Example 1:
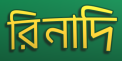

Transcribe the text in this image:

রিনাদি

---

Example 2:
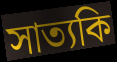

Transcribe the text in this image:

সাত্যকি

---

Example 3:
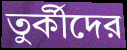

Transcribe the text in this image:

তুর্কীদের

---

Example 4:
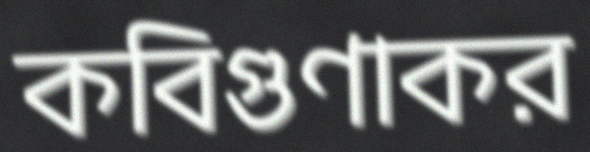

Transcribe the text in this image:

কবিগুণাকর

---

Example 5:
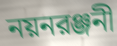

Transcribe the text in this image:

নয়নরঞ্জনী